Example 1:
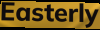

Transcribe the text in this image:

Easterly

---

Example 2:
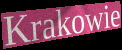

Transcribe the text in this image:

Krakowie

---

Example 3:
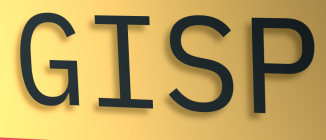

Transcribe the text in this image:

GISP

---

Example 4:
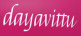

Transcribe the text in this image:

dayavittu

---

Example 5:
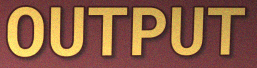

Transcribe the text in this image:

OUTPUT